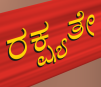
ರಕ್ಷ್ಯತೇ